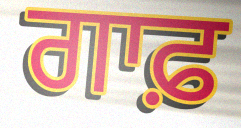
ਗਾਫ਼